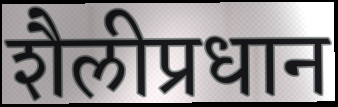
शैलीप्रधान